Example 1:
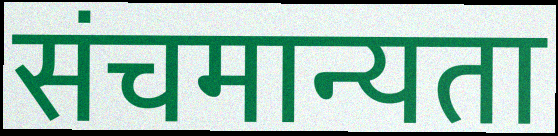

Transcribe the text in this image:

संचमान्यता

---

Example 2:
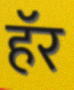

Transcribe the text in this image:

हॅर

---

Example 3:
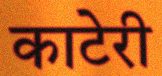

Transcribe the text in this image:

काटेरी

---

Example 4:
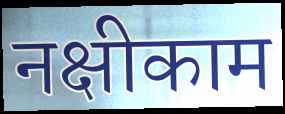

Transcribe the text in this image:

नक्षीकाम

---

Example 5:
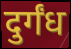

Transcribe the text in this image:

दुर्गंध